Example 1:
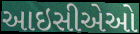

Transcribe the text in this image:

આઇસીએઓ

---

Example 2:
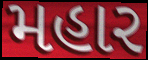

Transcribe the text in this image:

મહાર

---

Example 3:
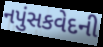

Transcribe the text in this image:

નપુંસકવેદની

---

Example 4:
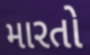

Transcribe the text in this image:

મારતો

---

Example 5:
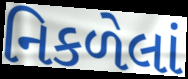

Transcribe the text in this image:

નિકળેલાં